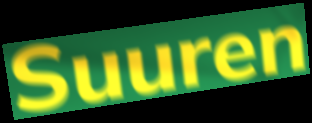
Suuren